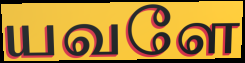
யவளே